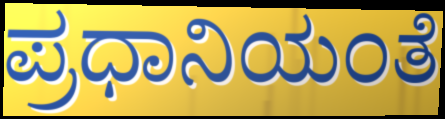
ಪ್ರಧಾನಿಯಂತೆ